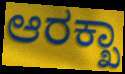
ಆರಕ್ಖಾ